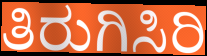
ತಿರುಗಿಸಿರಿ